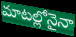
మాటల్లోనైనా